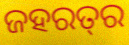
ଜହରତ୍‍ର